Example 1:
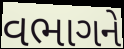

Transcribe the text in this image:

વભાગને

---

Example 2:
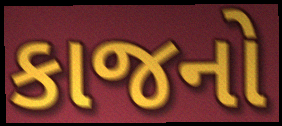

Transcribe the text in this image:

કાજનો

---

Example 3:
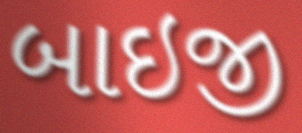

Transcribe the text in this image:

બાઇજી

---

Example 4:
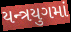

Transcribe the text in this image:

યન્ત્રયુગમાં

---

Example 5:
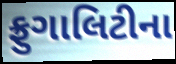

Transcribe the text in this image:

ફ્રુગાલિટીના